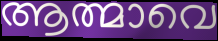
ആത്മാവെ